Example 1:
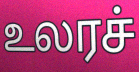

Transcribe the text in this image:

உலரச்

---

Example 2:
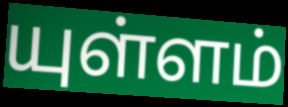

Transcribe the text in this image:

யுள்ளம்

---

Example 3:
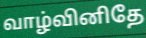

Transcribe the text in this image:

வாழ்வினிதே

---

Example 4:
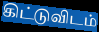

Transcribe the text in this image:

கிட்டுவிடம்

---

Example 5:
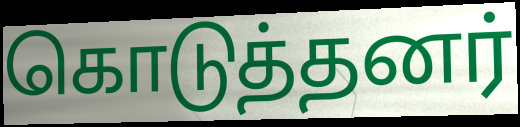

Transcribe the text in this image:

கொடுத்தனர்